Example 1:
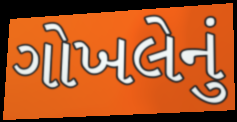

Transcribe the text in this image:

ગોખલેનું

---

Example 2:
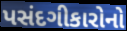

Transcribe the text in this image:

પસંદગીકારોનો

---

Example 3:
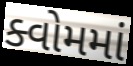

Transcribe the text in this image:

ક્વોમમાં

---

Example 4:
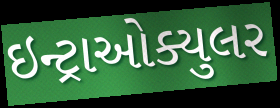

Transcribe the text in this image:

ઇન્ટ્રાઓક્યુલર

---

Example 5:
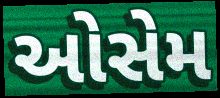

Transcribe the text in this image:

ઓસેમ